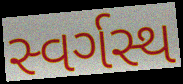
સ્વર્ગસ્થ